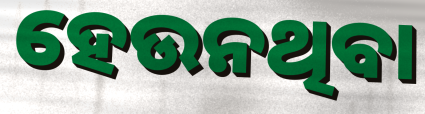
ହେଉନଥିବା